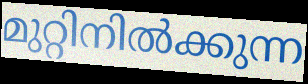
മുറ്റിനിൽക്കുന്ന